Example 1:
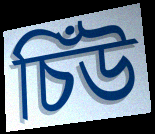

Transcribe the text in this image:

চিঁউ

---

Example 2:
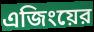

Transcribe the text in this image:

এজিংয়ের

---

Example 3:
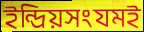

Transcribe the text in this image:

ইন্দ্রিয়সংযমই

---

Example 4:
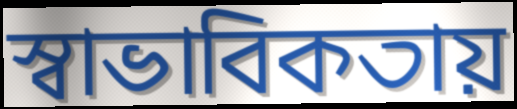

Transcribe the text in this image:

স্বাভাবিকতায়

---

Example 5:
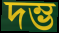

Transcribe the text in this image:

দম্ভ